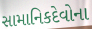
સામાનિકદેવોના